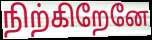
நிற்கிறேனே